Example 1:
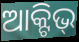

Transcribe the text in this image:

ଆକ୍ଟିଭ୍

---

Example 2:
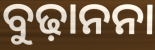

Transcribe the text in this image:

ବୁଢ଼ାନନା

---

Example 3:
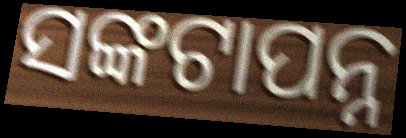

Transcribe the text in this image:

ସଙ୍କଟାପନ୍ନ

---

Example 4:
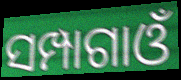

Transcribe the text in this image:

ସମ୍ପାଗାଓଁ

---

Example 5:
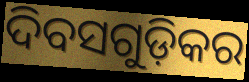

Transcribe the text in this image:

ଦିବସଗୁଡ଼ିକର